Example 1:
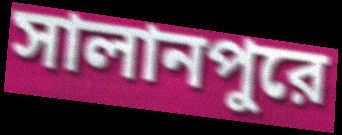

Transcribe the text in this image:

সালানপুরে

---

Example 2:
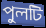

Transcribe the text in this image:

পুলটি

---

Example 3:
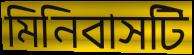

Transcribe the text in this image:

মিনিবাসটি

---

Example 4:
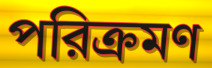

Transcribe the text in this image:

পরিক্রমণ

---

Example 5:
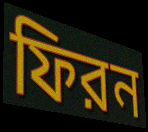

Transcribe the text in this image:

ফিরন